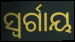
ସ୍ବର୍ଗାୟ